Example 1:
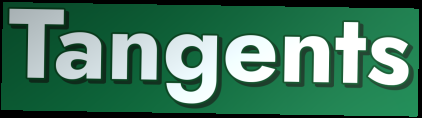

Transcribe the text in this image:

Tangents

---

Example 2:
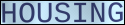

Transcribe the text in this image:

HOUSING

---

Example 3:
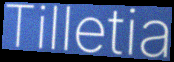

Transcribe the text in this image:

Tilletia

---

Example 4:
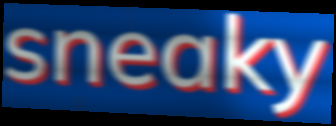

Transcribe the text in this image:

sneaky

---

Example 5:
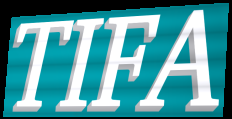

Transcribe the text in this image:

TIFA